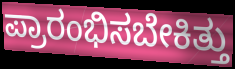
ಪ್ರಾರಂಭಿಸಬೇಕಿತ್ತು